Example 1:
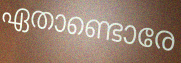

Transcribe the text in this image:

ഏതാണ്ടൊരേ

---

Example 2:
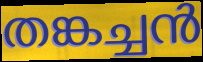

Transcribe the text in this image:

തങ്കച്ചൻ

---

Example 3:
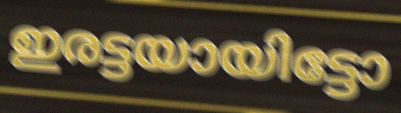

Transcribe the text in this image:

ഇരട്ടയായിട്ടോ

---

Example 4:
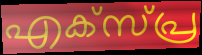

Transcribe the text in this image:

എക്സ്പ്ര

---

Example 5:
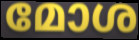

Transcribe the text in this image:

മോശ